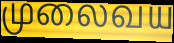
முலைவய